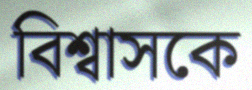
বিশ্বাসকে